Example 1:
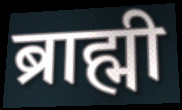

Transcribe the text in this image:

ब्राह्मी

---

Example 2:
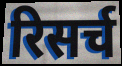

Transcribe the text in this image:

रिसर्च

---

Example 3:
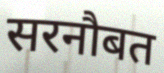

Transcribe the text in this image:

सरनौबत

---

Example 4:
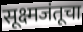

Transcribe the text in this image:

सूक्ष्मजंतूचा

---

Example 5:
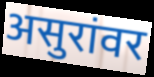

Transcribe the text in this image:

असुरांवर